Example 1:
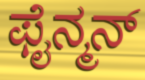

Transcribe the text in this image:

ಫೈನ್ಮನ್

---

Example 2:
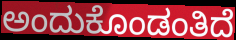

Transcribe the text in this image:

ಅಂದುಕೊಂಡಂತಿದೆ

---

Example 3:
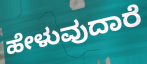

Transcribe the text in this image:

ಹೇಳುವುದಾರೆ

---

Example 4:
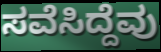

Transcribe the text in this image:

ಸವೆಸಿದ್ದೆವು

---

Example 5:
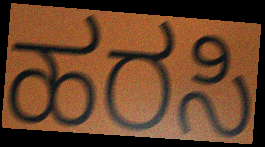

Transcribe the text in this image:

ಹರಸಿ